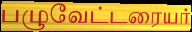
பழுவேட்டரையர்